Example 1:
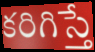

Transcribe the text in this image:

కరిగిస్తే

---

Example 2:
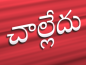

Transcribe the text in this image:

చాల్లేదు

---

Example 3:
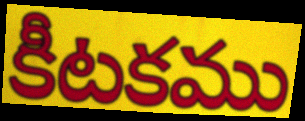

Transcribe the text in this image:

కీటకము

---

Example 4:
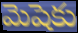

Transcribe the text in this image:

మెషెకు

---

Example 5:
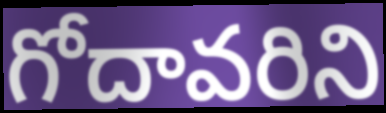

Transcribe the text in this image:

గోదావరిని